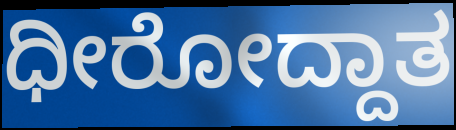
ಧೀರೋದ್ದಾತ